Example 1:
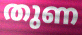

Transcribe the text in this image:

തുണ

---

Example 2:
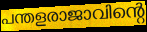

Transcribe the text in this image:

പന്തളരാജാവിന്റെ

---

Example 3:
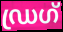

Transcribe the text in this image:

ഡ്രഗ്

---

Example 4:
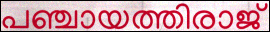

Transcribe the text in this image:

പഞ്ചായത്തിരാജ്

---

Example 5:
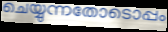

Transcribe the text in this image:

ചെയ്യുന്നതോടൊപ്പം